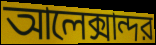
আলেক্সান্দর